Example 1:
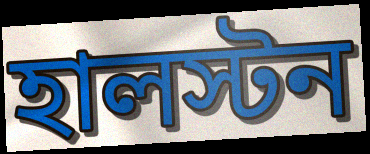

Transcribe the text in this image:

হালস্টন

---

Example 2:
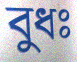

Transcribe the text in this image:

বুধঃ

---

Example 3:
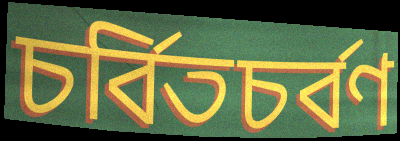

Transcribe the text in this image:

চর্বিতচর্বণ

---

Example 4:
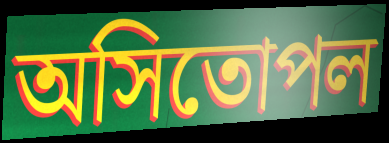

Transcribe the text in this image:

অসিতোপল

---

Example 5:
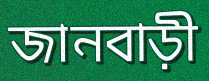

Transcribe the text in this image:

জানবাড়ী